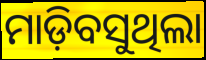
ମାଡ଼ିବସୁଥିଲା